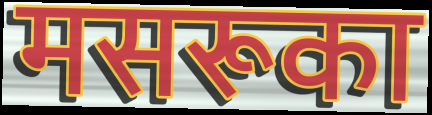
मसरूका